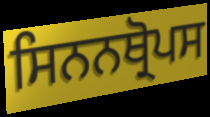
ਸਿਨਨਥ੍ਰੋਪਸ